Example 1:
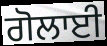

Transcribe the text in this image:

ਗੋਲਾਈ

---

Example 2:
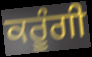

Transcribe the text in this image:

ਕਰੂੰਗੀ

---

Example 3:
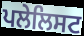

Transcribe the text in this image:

ਪਲੇਲਿਸਟ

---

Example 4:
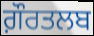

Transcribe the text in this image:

ਗ਼ੌਰਤਲਬ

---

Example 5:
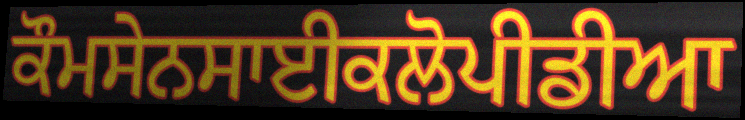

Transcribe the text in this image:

ਕੌਮਸੇਨਸਾਈਕਲੋਪੀਡੀਆ